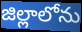
జిల్లాలోను